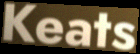
Keats